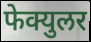
फेक्युलर